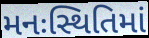
મનઃસ્થિતિમાં